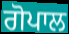
ਗੋਪਾਲ